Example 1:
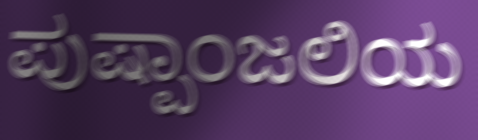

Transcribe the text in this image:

ಪುಷ್ಪಾಂಜಲಿಯ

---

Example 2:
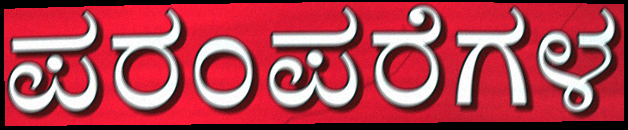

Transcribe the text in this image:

ಪರಂಪರೆಗಳ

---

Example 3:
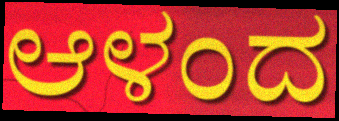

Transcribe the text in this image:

ಆಳಂದ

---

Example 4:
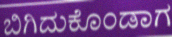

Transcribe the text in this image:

ಬಿಗಿದುಕೊಂಡಾಗ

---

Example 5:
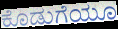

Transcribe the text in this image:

ಕೊಡುಗೆಯೂ